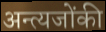
अन्त्यजोंकी